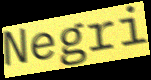
Negri